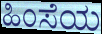
ಹಿಂಸೆಯ